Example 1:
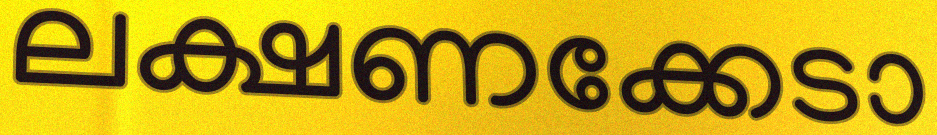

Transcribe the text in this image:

ലക്ഷണക്കേടാ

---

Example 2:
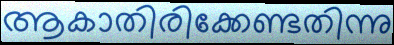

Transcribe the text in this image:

ആകാതിരിക്കേണ്ടതിന്നു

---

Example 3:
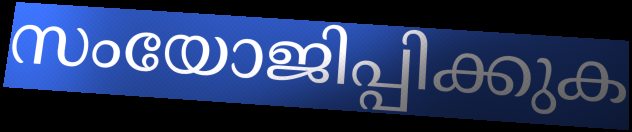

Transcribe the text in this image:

സംയോജിപ്പിക്കുക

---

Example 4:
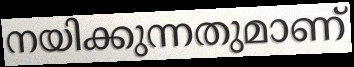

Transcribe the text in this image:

നയിക്കുന്നതുമാണ്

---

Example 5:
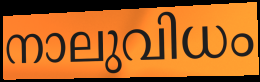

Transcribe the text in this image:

നാലുവിധം